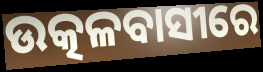
ଉତ୍କଳବାସୀରେ